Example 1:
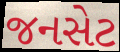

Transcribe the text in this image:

જનસેટ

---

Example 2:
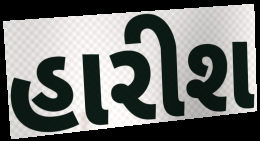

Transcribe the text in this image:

હારીશ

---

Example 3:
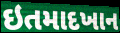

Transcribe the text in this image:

ઇતમાદખાન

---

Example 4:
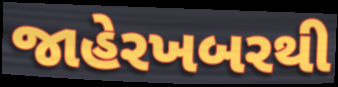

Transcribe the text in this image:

જાહેરખબરથી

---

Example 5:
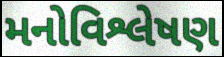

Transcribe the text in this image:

મનોવિશ્લેષણ